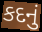
કદનું